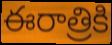
ఈరాత్రికి